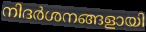
നിദർശനങ്ങളായി